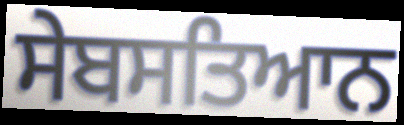
ਸੇਬਸਤਿਆਨ